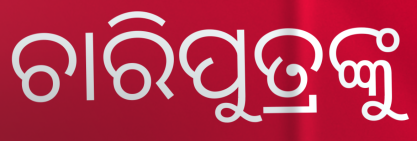
ଚାରିପୁତ୍ରଙ୍କୁ